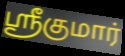
ஸ்ரீகுமார்